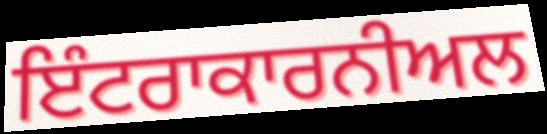
ਇੰਟਰਾਕਾਰਨੀਅਲ